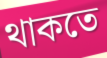
থাকতে